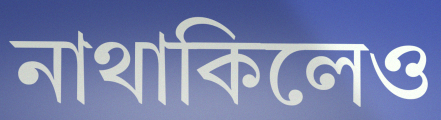
নাথাকিলেও